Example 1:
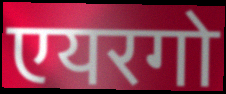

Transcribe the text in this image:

एयरगो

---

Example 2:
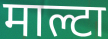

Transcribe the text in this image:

माल्टा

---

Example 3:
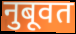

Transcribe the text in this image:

नुबूवत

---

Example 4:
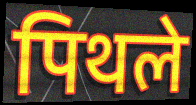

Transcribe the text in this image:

पिथले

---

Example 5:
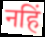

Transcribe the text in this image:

नहिं